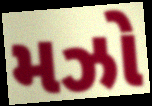
મઝો